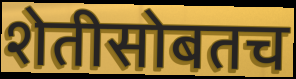
शेतीसोबतच